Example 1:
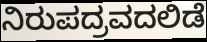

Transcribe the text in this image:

ನಿರುಪದ್ರವದಲಿಡೆ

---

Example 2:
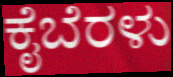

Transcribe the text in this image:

ಕೈಬೆರಳು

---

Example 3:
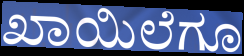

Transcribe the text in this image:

ಖಾಯಿಲೆಗೂ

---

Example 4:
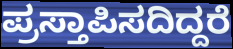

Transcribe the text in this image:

ಪ್ರಸ್ತಾಪಿಸದಿದ್ದರೆ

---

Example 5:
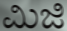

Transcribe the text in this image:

ಮಿಜಿ